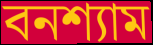
বনশ্যাম